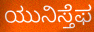
ಯುನಿಸ್ತೆಫ